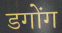
डगोंग